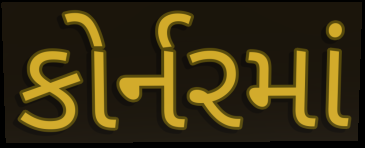
કોર્નરમાં